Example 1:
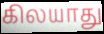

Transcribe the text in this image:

கிலயாது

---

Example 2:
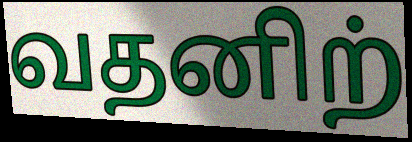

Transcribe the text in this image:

வதனிற்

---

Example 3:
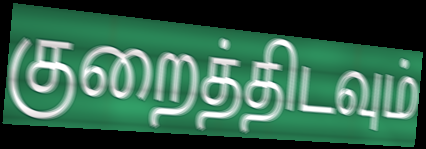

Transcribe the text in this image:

குறைத்திடவும்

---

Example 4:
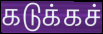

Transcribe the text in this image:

கடுக்கச்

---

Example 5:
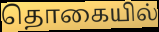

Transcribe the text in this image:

தொகையில்